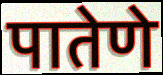
पातेणे